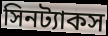
সিনট্যাকস